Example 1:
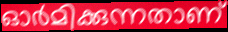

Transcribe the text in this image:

ഓർമിക്കുന്നതാണ്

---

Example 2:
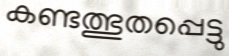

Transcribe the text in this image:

കണ്ടത്ഭുതപ്പെട്ടു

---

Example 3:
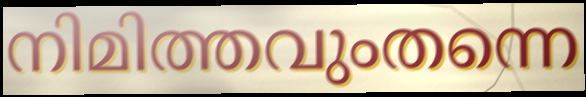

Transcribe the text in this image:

നിമിത്തവുംതന്നെ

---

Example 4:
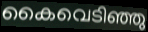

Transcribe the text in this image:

കൈവെടിഞ്ഞു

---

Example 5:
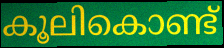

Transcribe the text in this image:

കൂലികൊണ്ട്